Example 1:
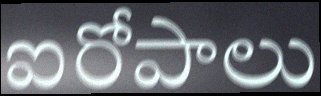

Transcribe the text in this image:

ఐరోపాలు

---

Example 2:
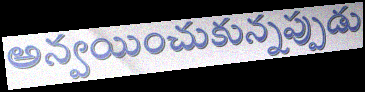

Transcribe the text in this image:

అన్వయించుకున్నప్పుడు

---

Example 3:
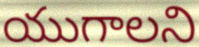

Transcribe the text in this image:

యుగాలని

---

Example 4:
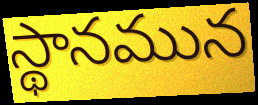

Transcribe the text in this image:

స్థానమున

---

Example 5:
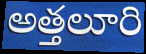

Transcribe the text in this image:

అత్తలూరి